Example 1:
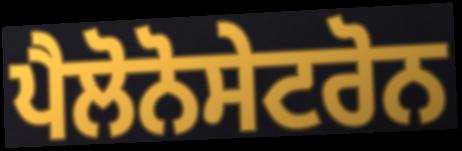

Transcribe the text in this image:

ਪੈਲੋਨੋਸੇਟਰੋਨ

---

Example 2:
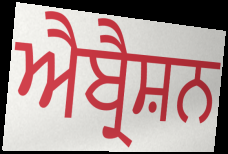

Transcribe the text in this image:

ਐਬ੍ਰੈਸ਼ਨ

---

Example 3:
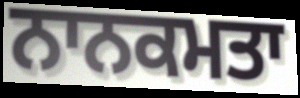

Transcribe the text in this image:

ਨਾਨਕਮਤਾ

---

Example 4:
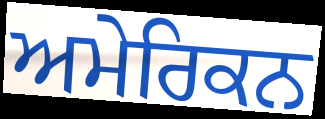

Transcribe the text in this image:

ਅਮੇਰਿਕਨ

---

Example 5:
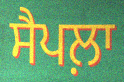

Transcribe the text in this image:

ਸੈਪਲ਼ਾ